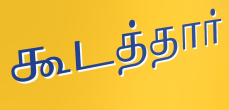
கூடத்தார்